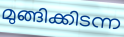
മുങ്ങിക്കിടന്ന